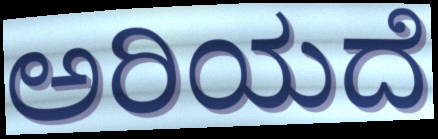
ಅರಿಯದೆ